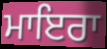
ਮਾਇਰਾ